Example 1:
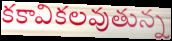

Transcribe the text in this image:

కకావికలవుతున్న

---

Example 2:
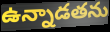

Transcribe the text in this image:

ఉన్నాడతను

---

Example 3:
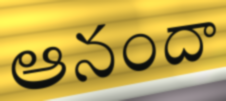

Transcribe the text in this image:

ఆనందా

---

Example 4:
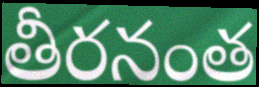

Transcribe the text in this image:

తీరనంత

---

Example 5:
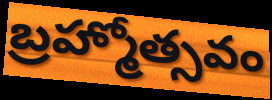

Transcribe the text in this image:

బ్రహ్మోత్సవం